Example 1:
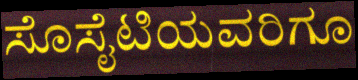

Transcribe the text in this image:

ಸೊಸೈಟಿಯವರಿಗೂ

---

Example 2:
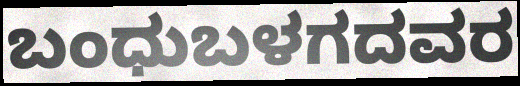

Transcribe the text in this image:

ಬಂಧುಬಳಗದವರ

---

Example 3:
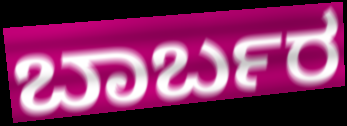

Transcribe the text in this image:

ಬಾರ್ಬರ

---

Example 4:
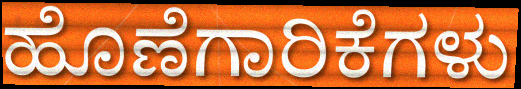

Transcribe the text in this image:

ಹೊಣೆಗಾರಿಕೆಗಳು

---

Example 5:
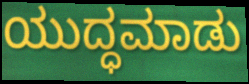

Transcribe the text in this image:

ಯುದ್ಧಮಾಡು